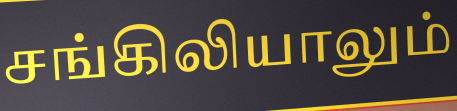
சங்கிலியாலும்